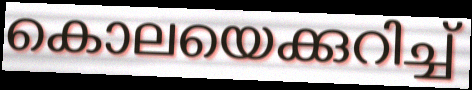
കൊലയെക്കുറിച്ച്